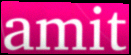
amit